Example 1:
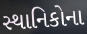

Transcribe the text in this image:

સ્થાનિકોના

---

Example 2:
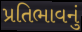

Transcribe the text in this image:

પ્રતિભાવનું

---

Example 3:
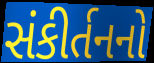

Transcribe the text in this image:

સંકીર્તનનો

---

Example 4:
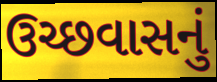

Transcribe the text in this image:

ઉચ્છવાસનું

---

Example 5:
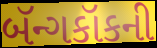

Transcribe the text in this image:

બૅન્ગકૉકની